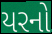
યરનો